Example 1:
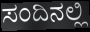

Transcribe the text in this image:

ಸಂದಿನಲ್ಲಿ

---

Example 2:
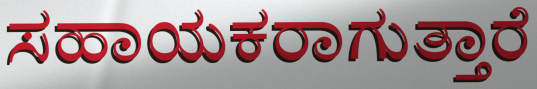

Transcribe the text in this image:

ಸಹಾಯಕರಾಗುತ್ತಾರೆ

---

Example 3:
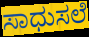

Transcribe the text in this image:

ಸಾಧುಸಲೆ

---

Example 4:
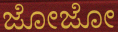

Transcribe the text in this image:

ಜೋಜೋ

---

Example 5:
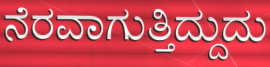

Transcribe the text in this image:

ನೆರವಾಗುತ್ತಿದ್ದುದು